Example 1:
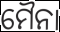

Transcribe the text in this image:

ମୈନା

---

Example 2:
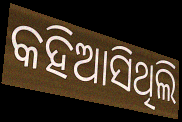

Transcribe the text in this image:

କହିଆସିଥିଲି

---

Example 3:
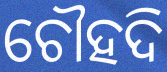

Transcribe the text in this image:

ଚୌହଦି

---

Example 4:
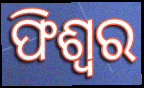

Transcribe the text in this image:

ଫିଶ୍ୱର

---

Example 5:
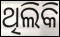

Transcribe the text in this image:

ଥିଲିକି